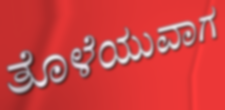
ತೊಳೆಯುವಾಗ